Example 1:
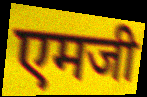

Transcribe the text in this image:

एमजी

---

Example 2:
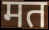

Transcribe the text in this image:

मत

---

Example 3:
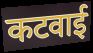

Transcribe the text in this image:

कटवाई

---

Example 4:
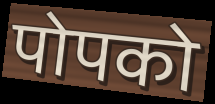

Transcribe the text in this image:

पोपको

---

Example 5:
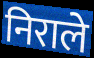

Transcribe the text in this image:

निराले